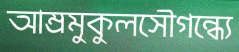
আম্রমুকুলসৌগন্ধ্যে